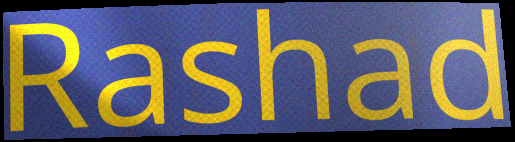
Rashad